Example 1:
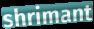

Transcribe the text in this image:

shrimant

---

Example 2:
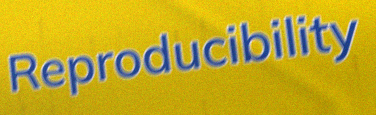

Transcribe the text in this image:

Reproducibility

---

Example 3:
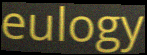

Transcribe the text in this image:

eulogy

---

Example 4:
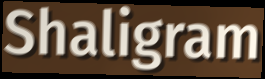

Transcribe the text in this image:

Shaligram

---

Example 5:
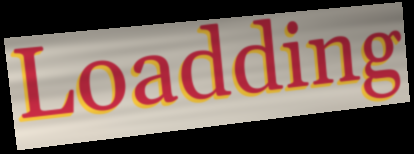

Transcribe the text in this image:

Loadding